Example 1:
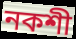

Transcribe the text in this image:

নকশী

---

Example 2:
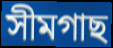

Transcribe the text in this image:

সীমগাছ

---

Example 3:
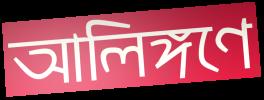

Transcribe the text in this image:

আলিঙ্গণে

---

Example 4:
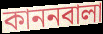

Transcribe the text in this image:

কাননবালা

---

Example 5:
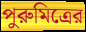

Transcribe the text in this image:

পুরুমিত্রের